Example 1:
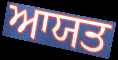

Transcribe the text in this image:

ਆਯਤ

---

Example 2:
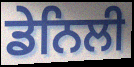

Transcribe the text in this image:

ਡੇਨਿਲੀ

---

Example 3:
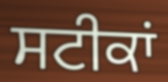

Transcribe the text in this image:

ਸਟੀਕਾਂ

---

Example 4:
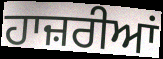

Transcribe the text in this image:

ਹਾਜ਼ਰੀਆਂ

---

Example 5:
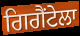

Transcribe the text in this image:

ਗਿਗੈਂਟੇਲਾ